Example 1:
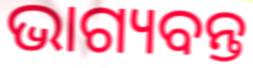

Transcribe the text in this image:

ଭାଗ୍ୟବନ୍ତ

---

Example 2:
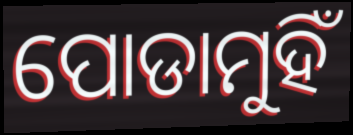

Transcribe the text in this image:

ପୋଡାମୁହିଁ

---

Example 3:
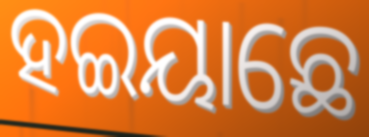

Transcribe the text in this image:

ହଇୟାଛେ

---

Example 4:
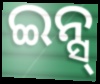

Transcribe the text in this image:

ଇନ୍ସ୍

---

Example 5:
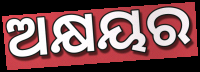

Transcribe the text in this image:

ଅକ୍ଷୟର